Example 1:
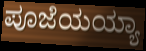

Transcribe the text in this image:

ಪೂಜೆಯಯ್ಯಾ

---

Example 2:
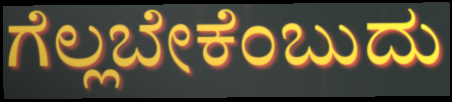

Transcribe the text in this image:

ಗೆಲ್ಲಬೇಕೆಂಬುದು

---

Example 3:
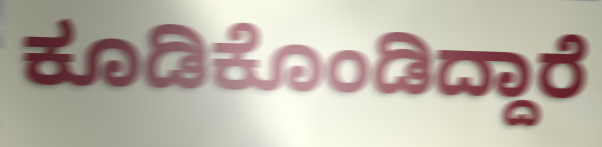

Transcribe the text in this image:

ಕೂಡಿಕೊಂಡಿದ್ದಾರೆ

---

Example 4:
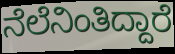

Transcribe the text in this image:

ನೆಲೆನಿಂತಿದ್ದಾರೆ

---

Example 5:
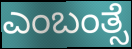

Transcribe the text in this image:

ಎಂಬಂತ್ಸೆ